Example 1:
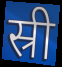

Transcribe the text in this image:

स्री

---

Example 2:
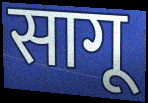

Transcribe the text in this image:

सागू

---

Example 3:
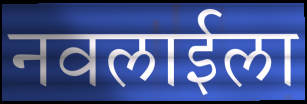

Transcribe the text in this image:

नवलाईला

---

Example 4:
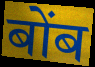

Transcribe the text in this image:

बोंब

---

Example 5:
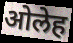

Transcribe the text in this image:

ओलेह